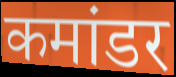
कमांडर